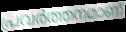
പ്രവർത്തനമാണ്